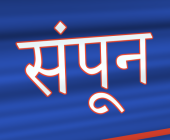
संपून